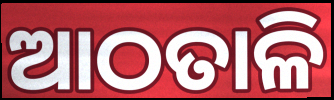
ଆଠତାଳି